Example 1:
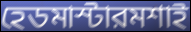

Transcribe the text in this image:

হেডমাস্টারমশাই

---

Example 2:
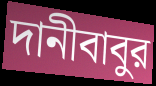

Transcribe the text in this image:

দানীবাবুর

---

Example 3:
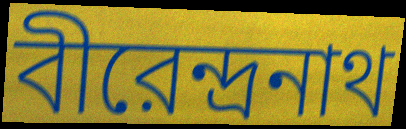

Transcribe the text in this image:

বীরেন্দ্রনাথ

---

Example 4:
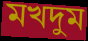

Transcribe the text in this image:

মখদুম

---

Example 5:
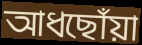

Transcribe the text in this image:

আধছোঁয়া